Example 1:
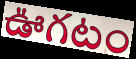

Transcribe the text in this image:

ఊగటం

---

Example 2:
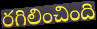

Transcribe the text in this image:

రగిలించింది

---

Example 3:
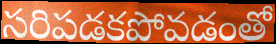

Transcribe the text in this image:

సరిపడకపోవడంతో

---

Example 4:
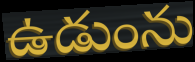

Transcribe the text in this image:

ఉడుంను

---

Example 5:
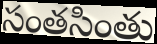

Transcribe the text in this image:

సంతసింతు